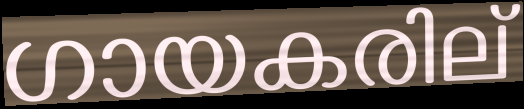
ഗായകരില്